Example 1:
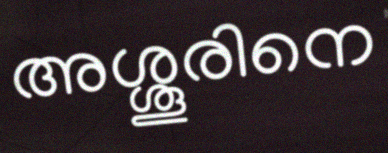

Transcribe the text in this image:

അശ്ശൂരിനെ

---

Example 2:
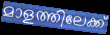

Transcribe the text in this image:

മാളത്തിലേക്ക്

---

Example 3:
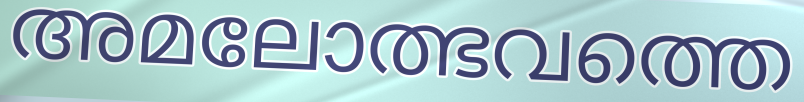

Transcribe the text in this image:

അമലോത്ഭവത്തെ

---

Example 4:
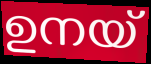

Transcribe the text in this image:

ഉനയ്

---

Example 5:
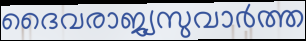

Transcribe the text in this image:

ദൈവരാജ്യസുവാർത്ത